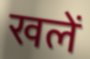
खलें